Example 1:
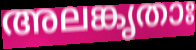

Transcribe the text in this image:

അലങ്കൃതാഃ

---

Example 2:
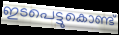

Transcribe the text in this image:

ഇടപെട്ടുകൊണ്ട്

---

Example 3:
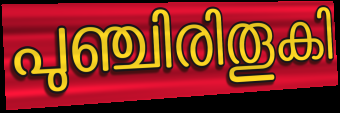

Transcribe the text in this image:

പുഞ്ചിരിതൂകി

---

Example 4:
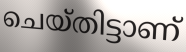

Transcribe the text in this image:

ചെയ്തിട്ടാണ്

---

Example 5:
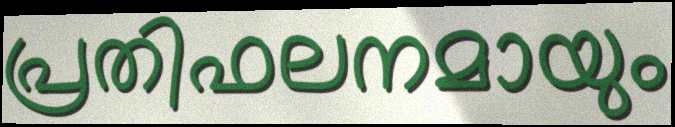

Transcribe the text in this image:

പ്രതിഫലനമായും